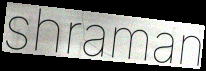
shraman